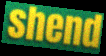
shend